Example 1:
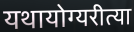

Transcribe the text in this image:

यथायोग्यरीत्या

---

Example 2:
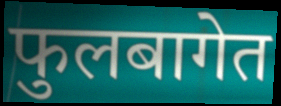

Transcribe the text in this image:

फुलबागेत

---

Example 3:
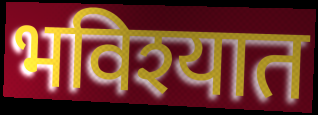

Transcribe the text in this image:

भविश्यात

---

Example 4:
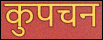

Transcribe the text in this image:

कुपचन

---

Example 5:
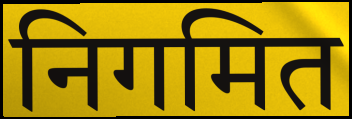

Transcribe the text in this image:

निगमित